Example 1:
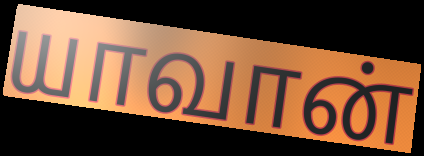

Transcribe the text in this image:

யாவான்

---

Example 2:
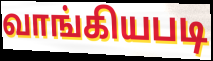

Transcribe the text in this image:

வாங்கியபடி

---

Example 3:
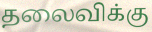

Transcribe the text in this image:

தலைவிக்கு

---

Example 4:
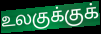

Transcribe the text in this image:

உலகுக்குக்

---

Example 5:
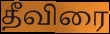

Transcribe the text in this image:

தீவிரை